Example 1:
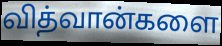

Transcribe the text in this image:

வித்வான்களை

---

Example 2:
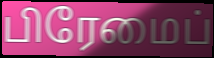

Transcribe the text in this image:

பிரேமைப்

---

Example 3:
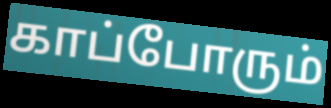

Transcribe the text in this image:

காப்போரும்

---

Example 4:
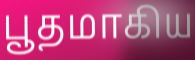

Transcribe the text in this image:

பூதமாகிய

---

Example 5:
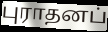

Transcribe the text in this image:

புராதனப்